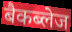
बैकब्लेज